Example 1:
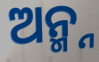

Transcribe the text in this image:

ଅନ୍ମ୍ନ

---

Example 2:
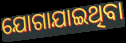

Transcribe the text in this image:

ଯୋଗାଯାଇଥିବା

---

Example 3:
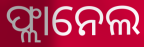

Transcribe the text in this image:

ଫ୍ଲାନେଲ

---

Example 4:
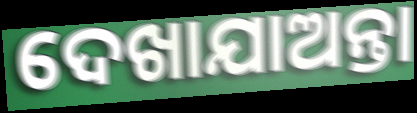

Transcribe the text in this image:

ଦେଖାଯାଅନ୍ତା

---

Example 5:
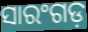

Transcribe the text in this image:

ସାରଂଗଡ଼